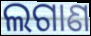
ଲଗାଣ